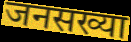
जनसख्या